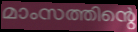
മാംസത്തിന്റെ